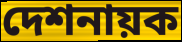
দেশনায়ক